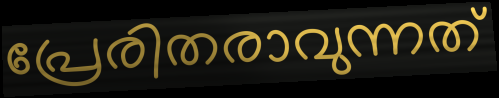
പ്രേരിതരാവുന്നത്